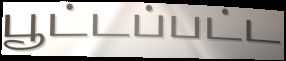
பூட்டப்பட்ட